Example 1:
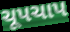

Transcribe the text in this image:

ચૂપચાપ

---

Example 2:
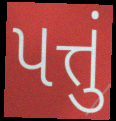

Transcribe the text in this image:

પત્તું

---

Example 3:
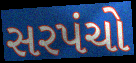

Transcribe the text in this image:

સરપંચો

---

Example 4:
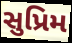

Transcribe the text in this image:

સુપ્રિમ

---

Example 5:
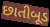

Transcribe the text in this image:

છાતીબૂડ